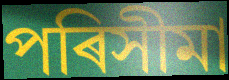
পৰিসীমা